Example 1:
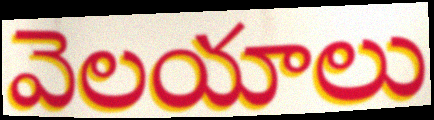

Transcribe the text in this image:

వెలయాలు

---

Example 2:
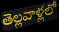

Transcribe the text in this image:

తెల్లవాళ్లలో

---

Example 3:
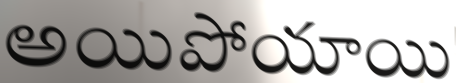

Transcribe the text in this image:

అయిపోయాయి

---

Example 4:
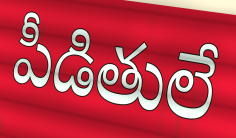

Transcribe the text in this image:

పీడితులే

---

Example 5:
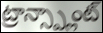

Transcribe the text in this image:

ట్రాన్స్ప్లాంట్